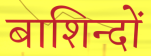
बाशिन्दों